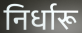
निर्धारू